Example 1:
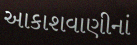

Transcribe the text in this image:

આકાશવાણીનાં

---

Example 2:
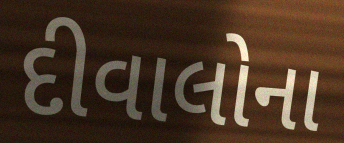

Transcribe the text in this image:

દીવાલોના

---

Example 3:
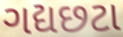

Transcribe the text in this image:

ગદ્યછટા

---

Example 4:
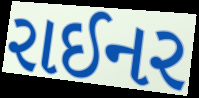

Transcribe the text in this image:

રાઈનર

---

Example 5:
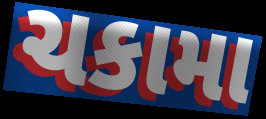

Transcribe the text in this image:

ચકામા